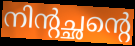
നിന്റച്ഛന്റെ